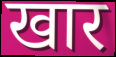
खार